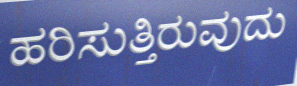
ಹರಿಸುತ್ತಿರುವುದು